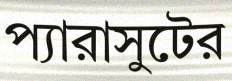
প্যারাসুটের